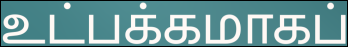
உட்பக்கமாகப்